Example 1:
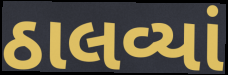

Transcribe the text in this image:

ઠાલવ્યાં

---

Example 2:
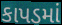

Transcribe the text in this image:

કાપડમાં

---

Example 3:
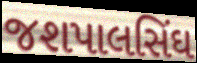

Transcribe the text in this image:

જશપાલસિંઘ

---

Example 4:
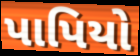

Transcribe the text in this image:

પાપિયો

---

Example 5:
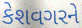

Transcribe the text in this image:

કેશવગરને